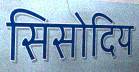
सिसोदिय